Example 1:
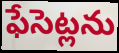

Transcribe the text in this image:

ఫేసెట్లను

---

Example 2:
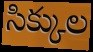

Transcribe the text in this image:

సిక్కుల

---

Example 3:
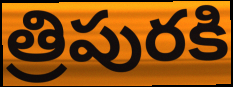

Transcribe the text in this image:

త్రిపురకి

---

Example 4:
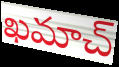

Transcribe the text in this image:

ఖమాచ్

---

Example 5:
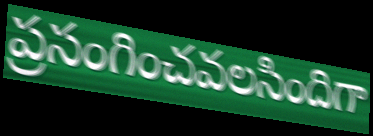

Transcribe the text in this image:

ప్రసంగించవలసిందిగా